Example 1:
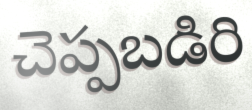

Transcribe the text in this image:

చెప్పబడిరి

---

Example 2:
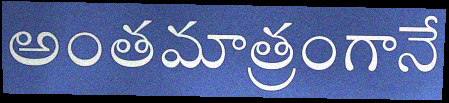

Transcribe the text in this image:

అంతమాత్రంగానే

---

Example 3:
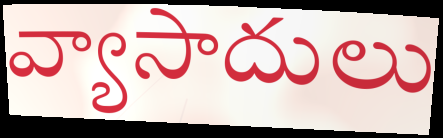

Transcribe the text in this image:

వ్యాసాదులు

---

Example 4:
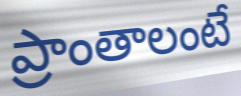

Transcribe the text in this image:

ప్రాంతాలంటే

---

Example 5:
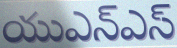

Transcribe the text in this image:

యుఎన్ఎస్